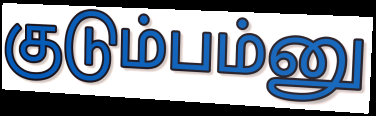
குடும்பம்னு